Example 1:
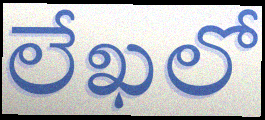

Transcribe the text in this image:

లేఖలో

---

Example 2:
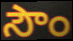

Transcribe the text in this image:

సౌం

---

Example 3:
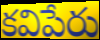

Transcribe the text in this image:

కవిపేరు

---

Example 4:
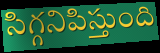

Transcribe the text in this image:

సిగ్గనిపిస్తుంది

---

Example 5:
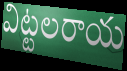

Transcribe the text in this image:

విట్టలరాయ